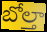
బోల్తా